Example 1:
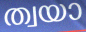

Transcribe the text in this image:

ത്വയാ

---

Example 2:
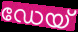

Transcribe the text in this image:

ഡേയ്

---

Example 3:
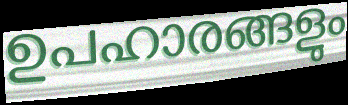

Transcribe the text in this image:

ഉപഹാരങ്ങളും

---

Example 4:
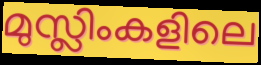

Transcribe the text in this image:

മുസ്ലിംകളിലെ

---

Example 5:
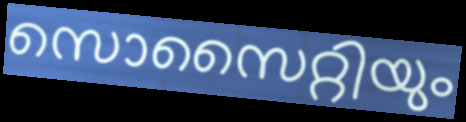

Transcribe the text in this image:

സൊസൈറ്റിയും